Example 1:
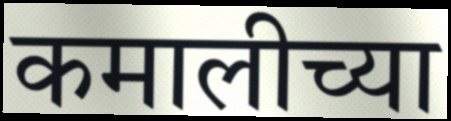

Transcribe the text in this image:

कमालीच्या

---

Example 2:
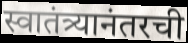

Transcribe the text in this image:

स्वातंत्र्यानंतरची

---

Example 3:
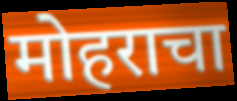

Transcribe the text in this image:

मोहराचा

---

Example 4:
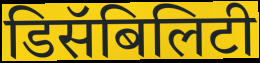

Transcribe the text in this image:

डिसॅबिलिटी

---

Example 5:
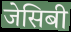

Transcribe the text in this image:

जेसिबी